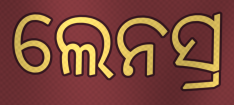
ଲେନସ୍ର